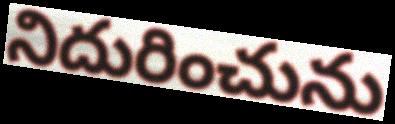
నిదురించును